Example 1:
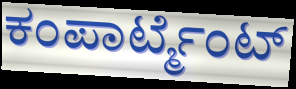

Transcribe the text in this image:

ಕಂಪಾರ್ಟ್ಮೆಂಟ್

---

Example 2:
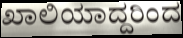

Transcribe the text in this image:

ಖಾಲಿಯಾದ್ದರಿಂದ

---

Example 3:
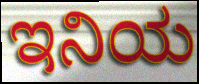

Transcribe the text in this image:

ಇನಿಯ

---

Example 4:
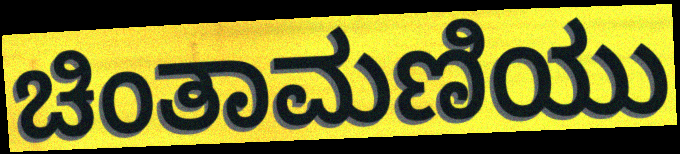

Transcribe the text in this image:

ಚಿಂತಾಮಣಿಯು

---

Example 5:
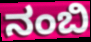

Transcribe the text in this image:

ನಂಬಿ